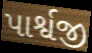
પાર્શ્વજી